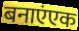
बनाएंएक